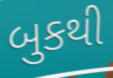
બુકથી